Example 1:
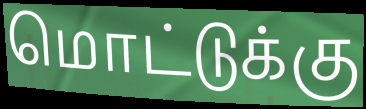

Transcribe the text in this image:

மொட்டுக்கு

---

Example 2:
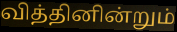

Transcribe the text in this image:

வித்தினின்றும்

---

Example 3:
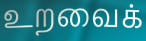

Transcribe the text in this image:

உறவைக்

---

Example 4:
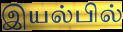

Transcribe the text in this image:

இயல்பில்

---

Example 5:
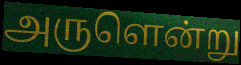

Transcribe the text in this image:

அருளென்று